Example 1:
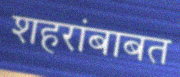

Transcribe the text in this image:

शहरांबाबत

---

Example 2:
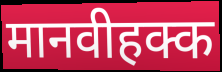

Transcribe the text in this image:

मानवीहक्क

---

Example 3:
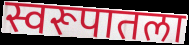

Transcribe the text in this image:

स्वरूपातला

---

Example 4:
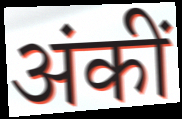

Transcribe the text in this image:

अंकीं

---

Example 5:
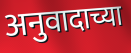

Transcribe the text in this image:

अनुवादाच्या